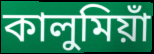
কালুমিয়াঁ